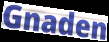
Gnaden